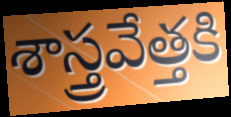
శాస్త్రవేత్తకి